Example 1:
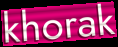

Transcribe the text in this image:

khorak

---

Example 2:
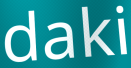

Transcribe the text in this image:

daki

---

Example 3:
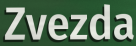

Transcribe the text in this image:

Zvezda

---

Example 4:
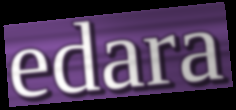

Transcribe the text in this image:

edara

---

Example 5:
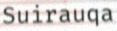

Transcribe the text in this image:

Suirauqa